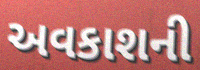
અવકાશની